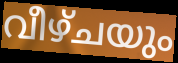
വീഴ്ചയും